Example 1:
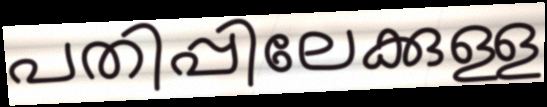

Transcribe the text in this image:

പതിപ്പിലേക്കുള്ള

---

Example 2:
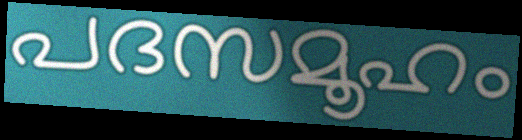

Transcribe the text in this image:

പദസമൂഹം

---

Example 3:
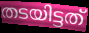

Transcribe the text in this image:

തടയിട്ടത്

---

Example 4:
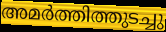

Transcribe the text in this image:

അമർത്തിത്തുടച്ചു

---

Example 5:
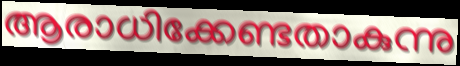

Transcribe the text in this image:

ആരാധിക്കേണ്ടതാകുന്നു